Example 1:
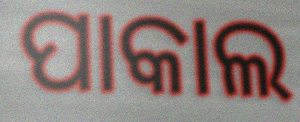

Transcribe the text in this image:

ପାକାଲ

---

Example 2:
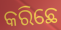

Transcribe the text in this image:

କରିଛେ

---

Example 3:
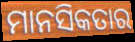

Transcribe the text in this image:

ମାନସିକତାର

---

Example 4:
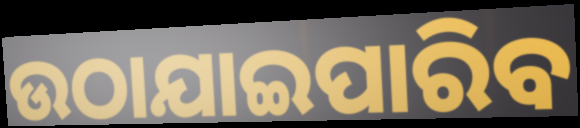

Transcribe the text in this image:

ଉଠାଯାଇପାରିବ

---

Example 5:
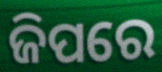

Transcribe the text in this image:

ଜିପରେ